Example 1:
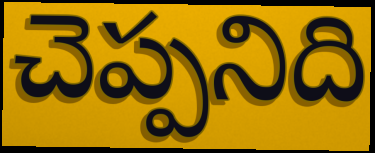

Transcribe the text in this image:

చెప్పనిది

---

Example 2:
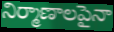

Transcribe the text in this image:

నిర్మాణాలపైనా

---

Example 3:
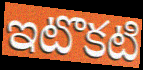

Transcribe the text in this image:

ఇటొకటి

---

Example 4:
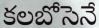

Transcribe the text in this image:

కలబోసెనే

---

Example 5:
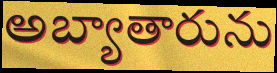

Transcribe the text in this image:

అబ్యాతారును